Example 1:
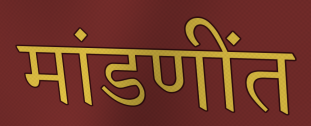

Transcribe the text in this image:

मांडणींत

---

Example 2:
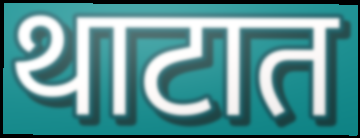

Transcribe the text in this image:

थाटात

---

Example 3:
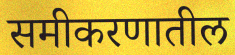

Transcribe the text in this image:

समीकरणातील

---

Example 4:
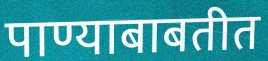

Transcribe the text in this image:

पाण्याबाबतीत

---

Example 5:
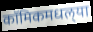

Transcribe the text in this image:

कॉमिकमधल्या